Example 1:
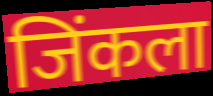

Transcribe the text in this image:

जिंकला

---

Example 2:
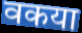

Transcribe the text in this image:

वकया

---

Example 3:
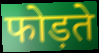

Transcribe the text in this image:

फोड़ते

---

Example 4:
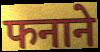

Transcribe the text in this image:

फनाने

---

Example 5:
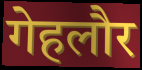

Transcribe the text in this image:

गेहलौर